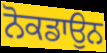
ਨੋਕਡਾਉਨ